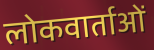
लोकवार्ताओं